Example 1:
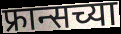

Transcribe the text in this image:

फ्रान्सच्या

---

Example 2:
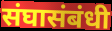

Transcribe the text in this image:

संघासंबंधी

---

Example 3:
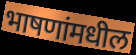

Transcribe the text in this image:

भाषणांमधील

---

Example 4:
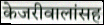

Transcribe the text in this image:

केजरीवालांसह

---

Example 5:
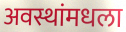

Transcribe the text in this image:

अवस्थांमधला